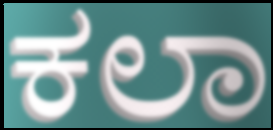
ಕಲಾ